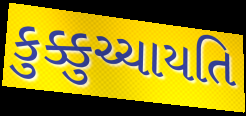
કુક્કુચ્ચાયતિ